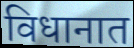
विधानात